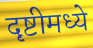
दृष्टीमध्ये